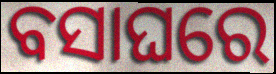
ବସାଘରେ